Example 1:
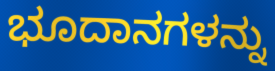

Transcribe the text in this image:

ಭೂದಾನಗಳನ್ನು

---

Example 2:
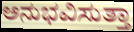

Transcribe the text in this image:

ಅನುಭವಿಸುತ್ತಾ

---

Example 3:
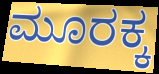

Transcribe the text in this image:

ಮೂರಕ್ಕ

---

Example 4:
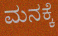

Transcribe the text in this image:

ಮನಕ್ಕೆ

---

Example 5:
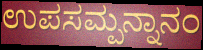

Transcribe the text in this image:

ಉಪಸಮ್ಪನ್ನಾನಂ